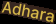
Adhara